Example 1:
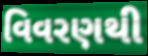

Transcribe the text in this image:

વિવરણથી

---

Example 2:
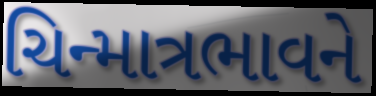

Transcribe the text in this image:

ચિન્માત્રભાવને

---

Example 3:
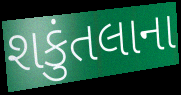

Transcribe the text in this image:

શકુંતલાના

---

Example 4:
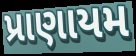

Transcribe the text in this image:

પ્રાણાયમ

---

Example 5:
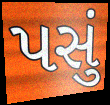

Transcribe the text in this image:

પસું